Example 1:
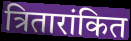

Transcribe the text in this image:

त्रितारांकित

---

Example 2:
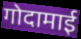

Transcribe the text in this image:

गोदामाई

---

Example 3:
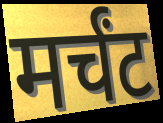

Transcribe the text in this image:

मर्चंट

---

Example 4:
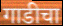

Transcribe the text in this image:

गाडीचा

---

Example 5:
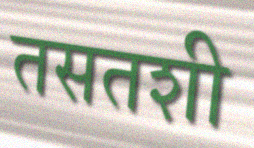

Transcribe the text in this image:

तसतशी